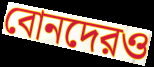
বোনদেরও